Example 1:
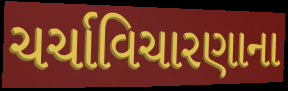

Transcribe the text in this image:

ચર્ચાવિચારણાના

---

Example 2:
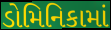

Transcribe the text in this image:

ડોમિનિકામાં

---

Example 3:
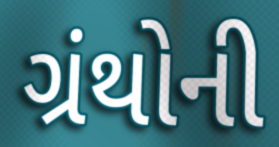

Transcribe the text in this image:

ગ્રંથોની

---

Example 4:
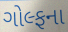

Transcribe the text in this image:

ગોલ્ફના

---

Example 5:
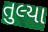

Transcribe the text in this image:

તુલ્યા